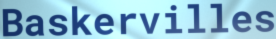
Baskervilles